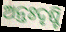
ଅନ୍ତଃଦୃଷ୍ଟି